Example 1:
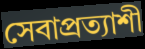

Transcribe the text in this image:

সেবাপ্রত্যাশী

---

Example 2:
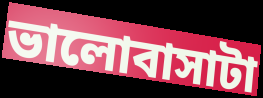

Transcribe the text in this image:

ভালোবাসাটা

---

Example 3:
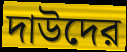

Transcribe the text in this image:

দাউদের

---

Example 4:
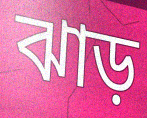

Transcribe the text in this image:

ঝাড়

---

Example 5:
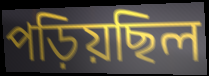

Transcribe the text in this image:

পড়িয়ছিল